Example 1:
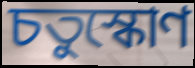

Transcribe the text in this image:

চতুস্কোণ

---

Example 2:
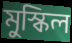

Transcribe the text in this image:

মুস্কিল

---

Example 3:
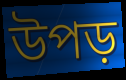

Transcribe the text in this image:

উপড়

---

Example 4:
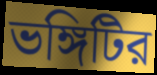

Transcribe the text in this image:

ভঙ্গিটির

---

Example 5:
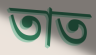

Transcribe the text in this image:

তাত